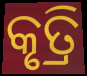
କୃତ୍ରି